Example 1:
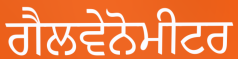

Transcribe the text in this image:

ਗੈਲਵੇਨੋਮੀਟਰ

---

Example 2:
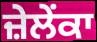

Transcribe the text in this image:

ਜ਼ੇਲੇਂਕਾ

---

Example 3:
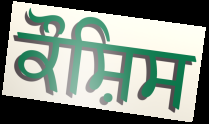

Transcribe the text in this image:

ਕੌਸ਼ਿਸ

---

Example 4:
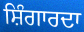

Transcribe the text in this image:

ਸ਼ਿੰਗਾਰਦਾ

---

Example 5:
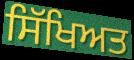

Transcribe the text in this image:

ਸਿੱਖਿਅਤ